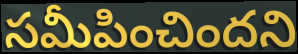
సమీపించిందని